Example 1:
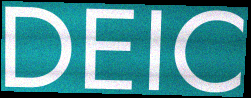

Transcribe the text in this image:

DEIC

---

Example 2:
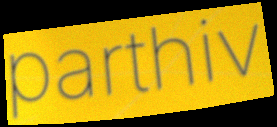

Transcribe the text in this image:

parthiv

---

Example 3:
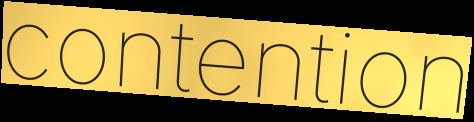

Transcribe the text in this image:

contention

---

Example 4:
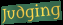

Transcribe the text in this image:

Judging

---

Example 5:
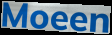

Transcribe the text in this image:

Moeen